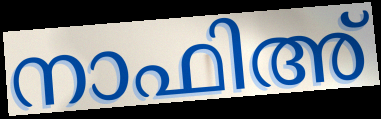
നാഫിഅ്